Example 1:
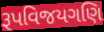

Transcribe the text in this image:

રૂપવિજયગણિ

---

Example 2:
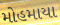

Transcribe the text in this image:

મોહમાયા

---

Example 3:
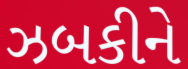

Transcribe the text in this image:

ઝબકીને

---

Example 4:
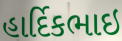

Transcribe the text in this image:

હાર્દિકભાઇ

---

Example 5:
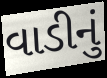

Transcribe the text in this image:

વાડીનું